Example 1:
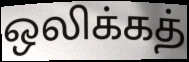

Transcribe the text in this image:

ஒலிக்கத்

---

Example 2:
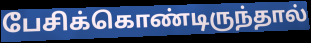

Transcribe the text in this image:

பேசிக்கொண்டிருந்தால்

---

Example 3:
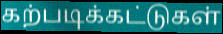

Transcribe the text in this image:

கற்படிக்கட்டுகள்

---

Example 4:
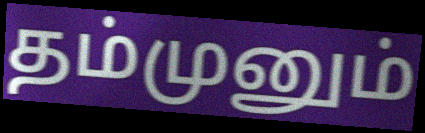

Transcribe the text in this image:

தம்முனும்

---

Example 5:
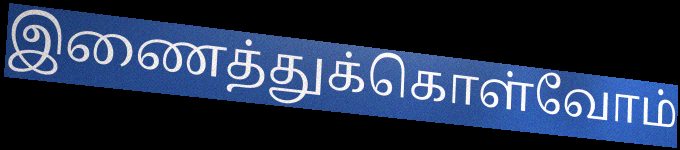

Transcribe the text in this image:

இணைத்துக்கொள்வோம்